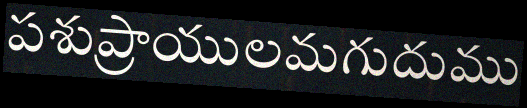
పశుప్రాయులమగుదుము